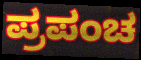
ಪ್ರಪಂಚ